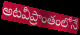
అటవీప్రాంతంలోనే